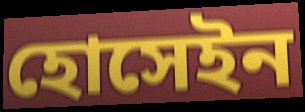
হোসেইন